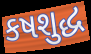
કષશુદ્ધ